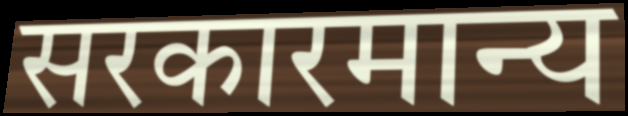
सरकारमान्य